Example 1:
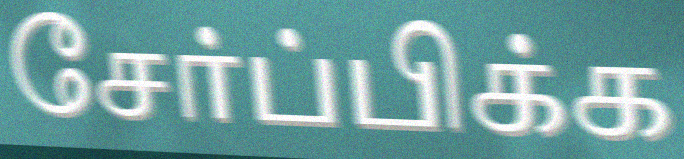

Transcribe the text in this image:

சேர்ப்பிக்க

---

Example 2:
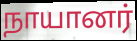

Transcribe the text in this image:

நாயானர்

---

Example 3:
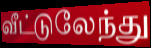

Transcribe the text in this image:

வீட்டுலேந்து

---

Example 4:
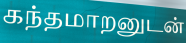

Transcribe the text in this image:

கந்தமாறனுடன்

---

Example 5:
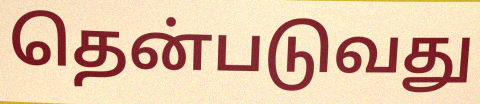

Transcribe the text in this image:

தென்படுவது